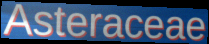
Asteraceae